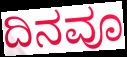
ದಿನವೂ